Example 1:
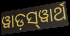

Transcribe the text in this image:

ୱାଡ଼ସ୍‌ୱାର୍ଥ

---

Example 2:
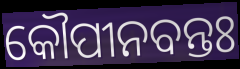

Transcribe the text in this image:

କୌପୀନବନ୍ତଃ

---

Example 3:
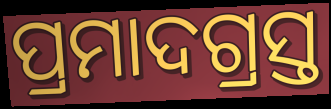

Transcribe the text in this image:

ପ୍ରମାଦଗ୍ରସ୍ତ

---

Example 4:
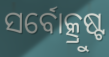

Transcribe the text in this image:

ସର୍ବୋତ୍କ୍ରୁଷ୍ଟ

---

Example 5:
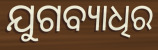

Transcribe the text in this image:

ଯୁଗବ୍ୟାଧିର